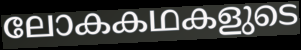
ലോകകഥകളുടെ